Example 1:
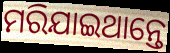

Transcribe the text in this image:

ମରିଯାଇଥାନ୍ତେ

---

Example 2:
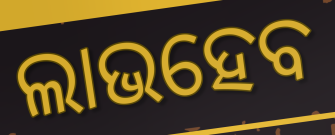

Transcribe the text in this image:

ଲାଭହେବ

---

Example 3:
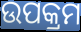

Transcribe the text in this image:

ଉପକ୍ରମ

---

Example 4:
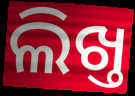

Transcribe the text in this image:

ଲିଖ୍ତ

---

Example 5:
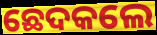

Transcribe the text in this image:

ଛେଦକଲେ